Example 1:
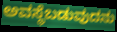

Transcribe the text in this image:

ಅವಸ್ಥೆಬಡುವುದನು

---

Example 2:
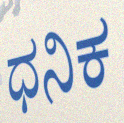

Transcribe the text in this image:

ಧನಿಕ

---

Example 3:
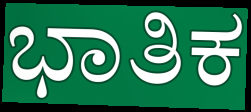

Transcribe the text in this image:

ಭಾತಿಕ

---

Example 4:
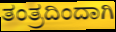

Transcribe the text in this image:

ತಂತ್ರದಿಂದಾಗಿ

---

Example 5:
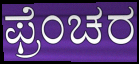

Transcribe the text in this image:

ಫ್ರೆಂಚರ